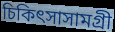
চিকিৎসাসামগ্রী